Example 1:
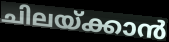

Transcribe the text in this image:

ചിലയ്ക്കാൻ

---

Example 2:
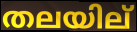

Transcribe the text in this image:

തലയില്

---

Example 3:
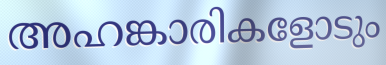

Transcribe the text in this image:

അഹങ്കാരികളോടും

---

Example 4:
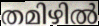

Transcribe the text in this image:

തമിഴിൽ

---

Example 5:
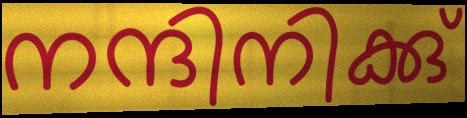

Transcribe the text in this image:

നന്ദിനിക്കു്